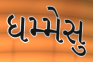
ધમ્મેસુ